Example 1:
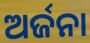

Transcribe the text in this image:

ଅର୍ଜନା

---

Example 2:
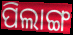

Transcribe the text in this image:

ପିଲାଙ୍ଗ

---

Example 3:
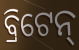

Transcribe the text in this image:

ବ୍ରିଟେନ୍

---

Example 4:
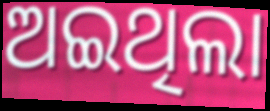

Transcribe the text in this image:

ଅଇଥିଲା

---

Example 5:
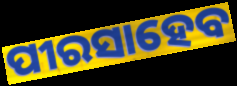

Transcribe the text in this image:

ପୀରସାହେବ